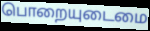
பொறையுடைமை